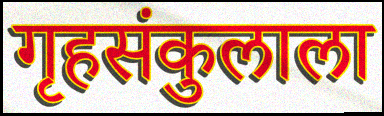
गृहसंकुलाला